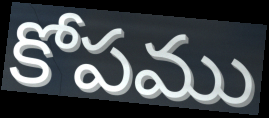
కోపము